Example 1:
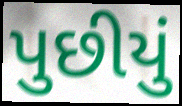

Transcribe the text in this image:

પુછીયું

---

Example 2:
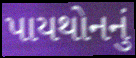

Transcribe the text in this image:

પાયથોનનું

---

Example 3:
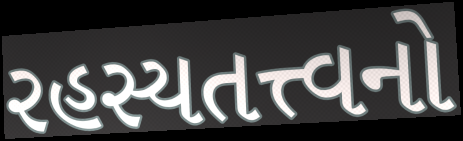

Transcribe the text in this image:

રહસ્યતત્ત્વનો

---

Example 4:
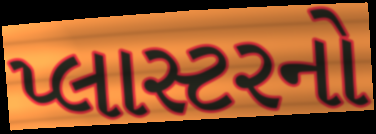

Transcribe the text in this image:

પ્લાસ્ટરનો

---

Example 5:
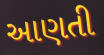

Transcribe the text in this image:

આણતી